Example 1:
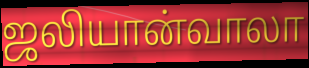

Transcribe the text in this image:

ஜலியான்வாலா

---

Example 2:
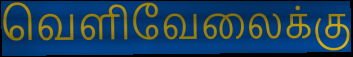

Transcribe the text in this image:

வெளிவேலைக்கு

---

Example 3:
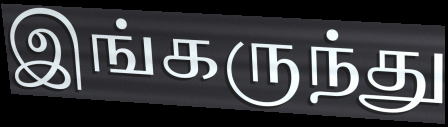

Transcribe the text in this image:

இங்கருந்து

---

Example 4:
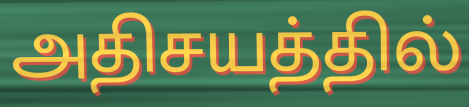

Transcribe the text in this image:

அதிசயத்தில்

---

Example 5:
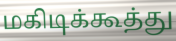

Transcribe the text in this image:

மகிடிக்கூத்து